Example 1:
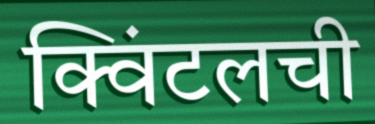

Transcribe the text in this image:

क्विंटलची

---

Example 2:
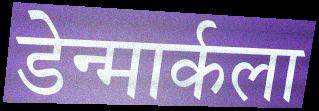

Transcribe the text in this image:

डेन्मार्कला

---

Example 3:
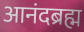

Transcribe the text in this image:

आनंदब्रह्म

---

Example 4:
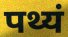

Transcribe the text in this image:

पथ्यं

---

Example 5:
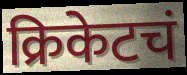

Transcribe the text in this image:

क्रिकेटचं